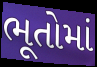
ભૂતોમાં